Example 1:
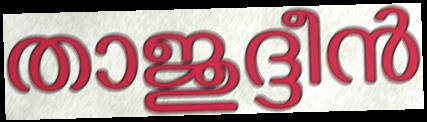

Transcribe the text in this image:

താജുദ്ദീൻ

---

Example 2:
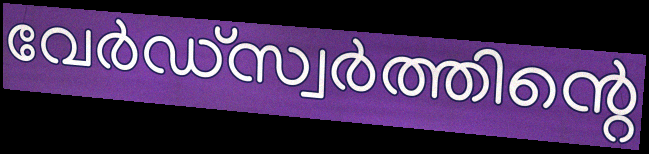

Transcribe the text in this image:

വേർഡ്സ്വർത്തിന്റെ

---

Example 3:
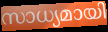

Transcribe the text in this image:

സാധ്യമായി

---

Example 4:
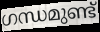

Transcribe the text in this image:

ഗന്ധമുണ്ട്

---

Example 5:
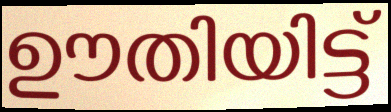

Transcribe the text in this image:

ഊതിയിട്ട്